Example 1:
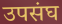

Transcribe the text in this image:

उपसंघ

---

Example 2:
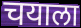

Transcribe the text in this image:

चयाला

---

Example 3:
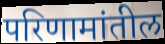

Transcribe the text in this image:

परिणामांतील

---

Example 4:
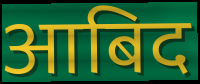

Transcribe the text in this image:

आबिद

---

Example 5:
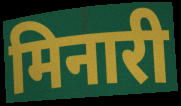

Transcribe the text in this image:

मिनारी